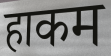
हाकम